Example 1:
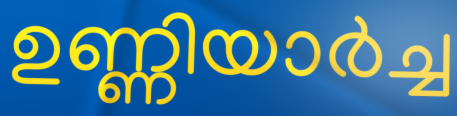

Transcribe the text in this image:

ഉണ്ണിയാർച്ച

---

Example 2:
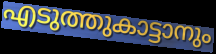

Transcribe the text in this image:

എടുത്തുകാട്ടാനും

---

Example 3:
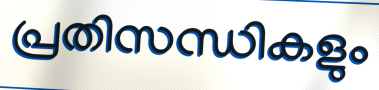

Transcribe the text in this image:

പ്രതിസന്ധികളും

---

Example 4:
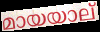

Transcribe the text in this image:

മായയാല്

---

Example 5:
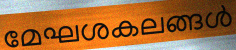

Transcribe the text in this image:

മേഘശകലങ്ങൾ